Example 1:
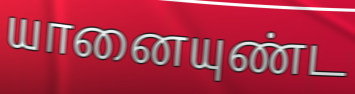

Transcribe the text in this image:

யானையுண்ட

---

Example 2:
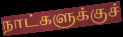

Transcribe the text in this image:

நாட்களுக்குச்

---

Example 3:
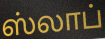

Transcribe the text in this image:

ஸ்லாப்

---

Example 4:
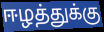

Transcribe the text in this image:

ஈழத்துக்கு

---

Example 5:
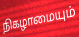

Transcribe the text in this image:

நிகழாமையும்